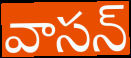
వాసన్